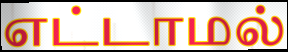
எட்டாமல்